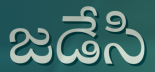
జడేసి